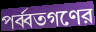
পর্ব্বতগণের